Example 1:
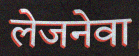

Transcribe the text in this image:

लेजनेवा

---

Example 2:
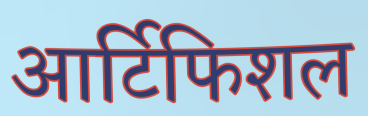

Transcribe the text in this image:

आर्टिफिशल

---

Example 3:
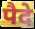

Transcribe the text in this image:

पैदे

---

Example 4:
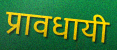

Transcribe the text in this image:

प्रावधायी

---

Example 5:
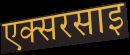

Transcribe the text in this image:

एक्सरसाइ